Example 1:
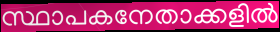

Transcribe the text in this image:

സ്ഥാപകനേതാക്കളിൽ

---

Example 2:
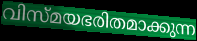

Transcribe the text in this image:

വിസ്മയഭരിതമാക്കുന്ന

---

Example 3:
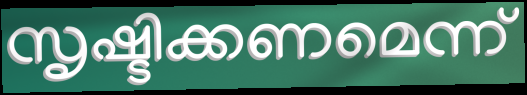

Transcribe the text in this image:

സൃഷ്ടിക്കണമെന്ന്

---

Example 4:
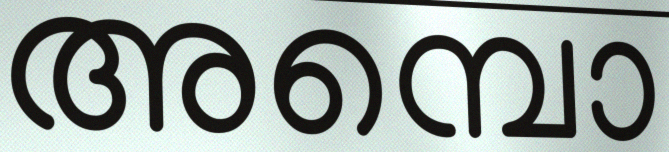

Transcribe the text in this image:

അമ്പൊ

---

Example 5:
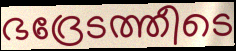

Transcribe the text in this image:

ഭദ്രേടത്തീടെ